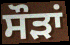
ਸੌੜਾਂ